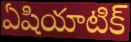
ఏషియాటిక్